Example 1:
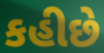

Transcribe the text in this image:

કહીછે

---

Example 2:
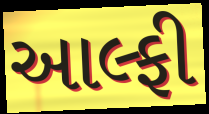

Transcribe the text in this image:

આલ્ફી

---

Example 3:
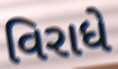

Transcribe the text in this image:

વિરાધે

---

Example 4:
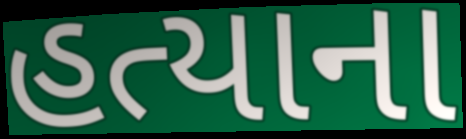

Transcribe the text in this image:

હત્યાના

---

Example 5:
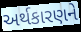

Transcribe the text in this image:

અર્થકારણને